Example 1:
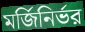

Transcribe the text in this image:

মর্জিনির্ভর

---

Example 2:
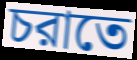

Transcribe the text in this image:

চরাতে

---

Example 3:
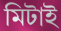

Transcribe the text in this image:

মিটাই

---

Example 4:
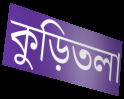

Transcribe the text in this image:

কুড়িতলা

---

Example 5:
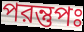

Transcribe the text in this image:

পরন্তুপঃ